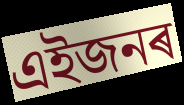
এইজনৰ